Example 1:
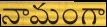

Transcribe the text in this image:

నామంగా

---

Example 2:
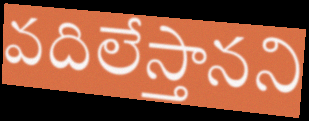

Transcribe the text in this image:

వదిలేస్తానని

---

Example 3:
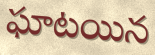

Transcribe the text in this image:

ఘాటయిన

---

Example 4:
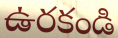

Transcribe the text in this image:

ఉరకండి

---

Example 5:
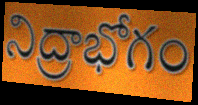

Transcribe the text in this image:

నిద్రాభోగం